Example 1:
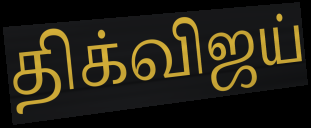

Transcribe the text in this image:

திக்விஜய்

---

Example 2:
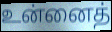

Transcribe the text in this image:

உன்னைத்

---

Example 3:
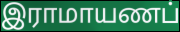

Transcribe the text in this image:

இராமாயணப்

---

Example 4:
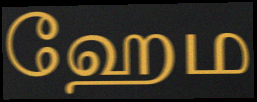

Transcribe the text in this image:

ஹேம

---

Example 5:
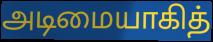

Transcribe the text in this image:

அடிமையாகித்